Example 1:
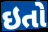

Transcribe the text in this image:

ઇતો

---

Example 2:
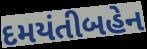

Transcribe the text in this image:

દમયંતીબહેન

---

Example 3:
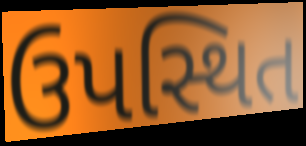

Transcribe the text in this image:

ઉપસ્થિત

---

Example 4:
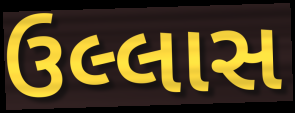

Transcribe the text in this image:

ઉલ્લાસ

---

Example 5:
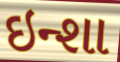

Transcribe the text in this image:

ઇન્શા